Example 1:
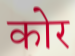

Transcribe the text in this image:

कोर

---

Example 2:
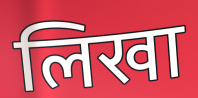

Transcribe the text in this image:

लिखा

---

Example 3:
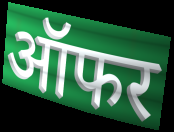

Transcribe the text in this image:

ऑफर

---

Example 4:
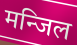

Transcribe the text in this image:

मन्जिल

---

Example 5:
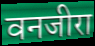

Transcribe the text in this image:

वनजीरा